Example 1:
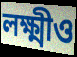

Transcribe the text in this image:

লক্ষ্মীও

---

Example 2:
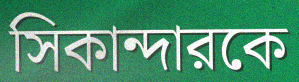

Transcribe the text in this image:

সিকান্দারকে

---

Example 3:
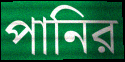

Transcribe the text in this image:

পানির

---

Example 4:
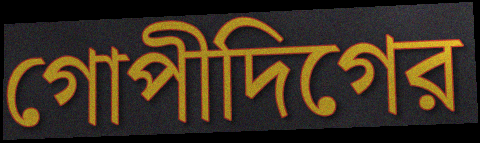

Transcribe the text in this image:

গোপীদিগের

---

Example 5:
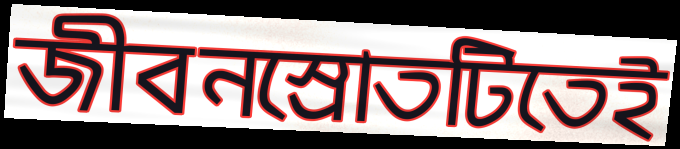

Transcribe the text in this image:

জীবনস্রোতটিতেই